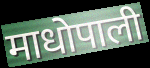
माधोपाली